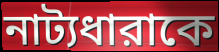
নাট্যধারাকে